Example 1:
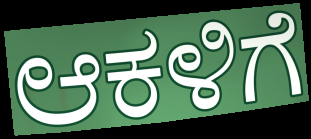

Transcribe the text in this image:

ಆಕಳಿಗೆ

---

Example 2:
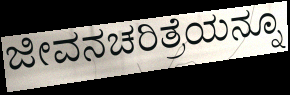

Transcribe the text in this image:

ಜೀವನಚರಿತ್ರೆಯನ್ನೂ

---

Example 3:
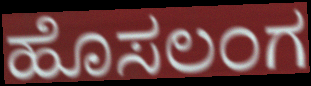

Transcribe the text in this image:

ಹೊಸಲಂಗ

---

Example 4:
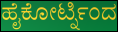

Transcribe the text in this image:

ಹೈಕೋರ್ಟ್ನಿಂದ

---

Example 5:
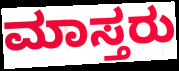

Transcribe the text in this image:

ಮಾಸ್ತರು